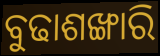
ବୁଢାଶଙ୍ଖାରି